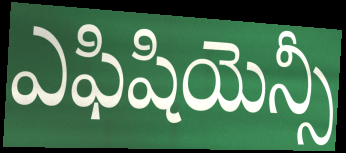
ఎఫిషియెన్సీ